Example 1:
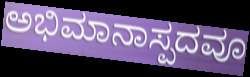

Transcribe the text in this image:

ಅಭಿಮಾನಾಸ್ಪದವೂ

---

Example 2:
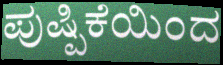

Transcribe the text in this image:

ಪುಷ್ಪಿಕೆಯಿಂದ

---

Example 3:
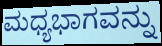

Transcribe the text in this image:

ಮಧ್ಯಭಾಗವನ್ನು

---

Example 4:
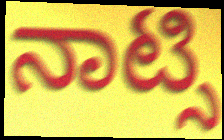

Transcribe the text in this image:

ನಾಟ್ಸಿ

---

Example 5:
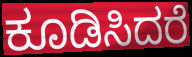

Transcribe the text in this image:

ಕೂಡಿಸಿದರೆ